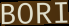
BORI